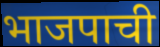
भाजपाची